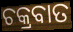
ଚକ୍ରବାତ